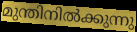
മുന്തിനിൽക്കുന്നു